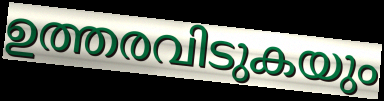
ഉത്തരവിടുകയും